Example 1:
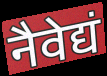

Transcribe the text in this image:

नैवेद्यं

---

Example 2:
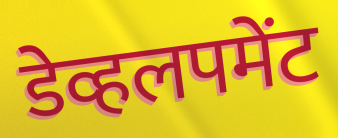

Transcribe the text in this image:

डेव्‍हलपमेंट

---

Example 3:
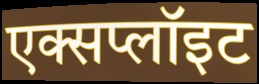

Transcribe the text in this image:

एक्सप्लॉइट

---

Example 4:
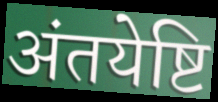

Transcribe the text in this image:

अंतयेष्टि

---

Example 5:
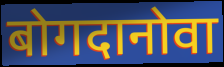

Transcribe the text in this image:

बोगदानोवा